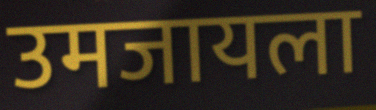
उमजायला